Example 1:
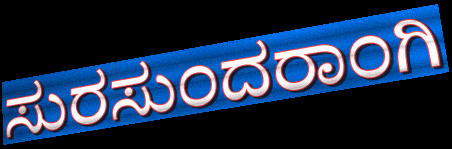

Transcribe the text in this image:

ಸುರಸುಂದರಾಂಗಿ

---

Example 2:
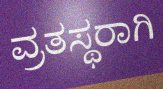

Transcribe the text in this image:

ವ್ರತಸ್ಥರಾಗಿ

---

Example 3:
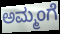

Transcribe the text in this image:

ಅಮ್ಮಂಗೆ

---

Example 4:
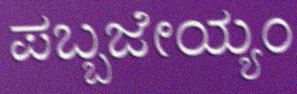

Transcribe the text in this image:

ಪಬ್ಬಜೇಯ್ಯಂ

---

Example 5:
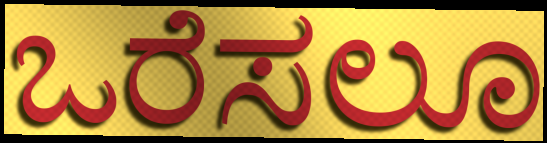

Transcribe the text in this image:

ಒರೆಸಲೂ